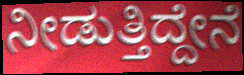
ನೀಡುತ್ತಿದ್ದೇನೆ